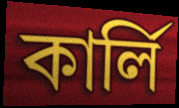
কার্লি